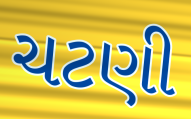
ચટણી